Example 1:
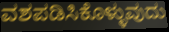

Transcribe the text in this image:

ವಶಪಡಿಸಿಕೊಳ್ಳುವುದು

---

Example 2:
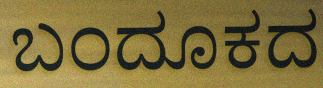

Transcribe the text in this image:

ಬಂದೂಕದ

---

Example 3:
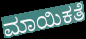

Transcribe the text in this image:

ಮಾಯಿಕತೆ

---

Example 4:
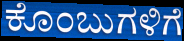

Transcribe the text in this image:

ಕೊಂಬುಗಳಿಗೆ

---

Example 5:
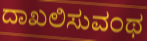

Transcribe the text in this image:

ದಾಖಲಿಸುವಂಥ